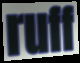
ruff